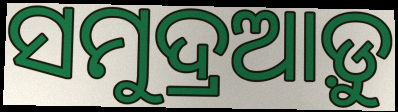
ସମୁଦ୍ରଆଡ଼ୁ